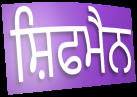
ਸ਼ਿਫਮੈਨ